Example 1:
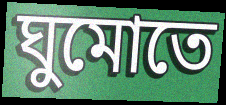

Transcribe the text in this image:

ঘুমোতে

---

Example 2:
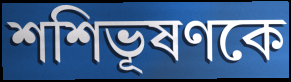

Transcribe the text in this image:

শশিভূষণকে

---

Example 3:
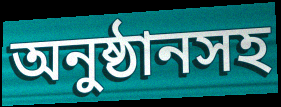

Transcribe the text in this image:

অনুষ্ঠানসহ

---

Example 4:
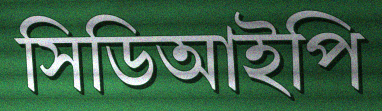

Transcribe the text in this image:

সিডিআইপি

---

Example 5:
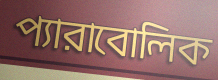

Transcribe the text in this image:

প্যারাবোলিক